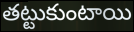
తట్టుకుంటాయి